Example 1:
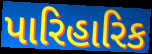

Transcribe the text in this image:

પારિહારિક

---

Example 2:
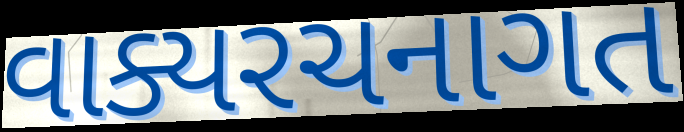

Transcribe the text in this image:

વાક્યરચનાગત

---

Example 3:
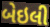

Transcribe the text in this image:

બેઇલી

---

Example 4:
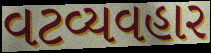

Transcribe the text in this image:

વટવ્યવહાર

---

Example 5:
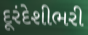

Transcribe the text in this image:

દૂરંદેશીભરી